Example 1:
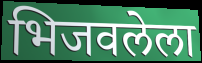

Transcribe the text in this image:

भिजवलेला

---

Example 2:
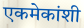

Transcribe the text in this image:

एकमेकांशी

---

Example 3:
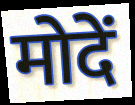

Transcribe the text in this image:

मोदें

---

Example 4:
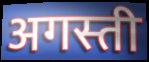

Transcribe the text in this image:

अगस्ती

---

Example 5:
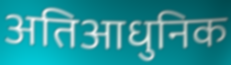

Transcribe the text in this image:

अतिआधुनिक